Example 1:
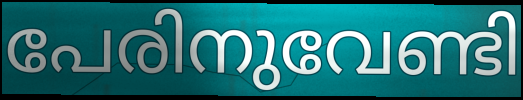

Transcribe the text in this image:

പേരിനുവേണ്ടി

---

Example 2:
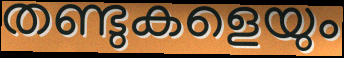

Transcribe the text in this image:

തണ്ടുകളെയും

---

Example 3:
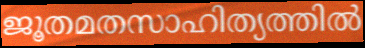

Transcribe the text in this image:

ജൂതമതസാഹിത്യത്തിൽ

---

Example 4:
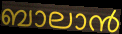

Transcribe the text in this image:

ബാലാൻ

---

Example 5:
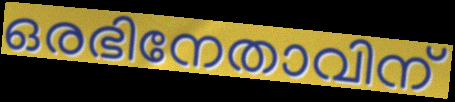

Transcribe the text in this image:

ഒരഭിനേതാവിന്